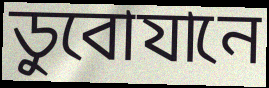
ডুবোযানে